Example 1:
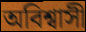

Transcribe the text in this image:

অবিশ্বাসী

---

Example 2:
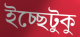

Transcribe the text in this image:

ইচ্ছেটুকু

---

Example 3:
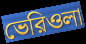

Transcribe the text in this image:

ভেরিওলা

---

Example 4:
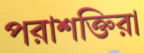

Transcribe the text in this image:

পরাশক্তিরা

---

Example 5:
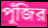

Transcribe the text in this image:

পুঁজির